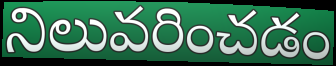
నిలువరించడం